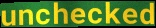
unchecked